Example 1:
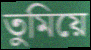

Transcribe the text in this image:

তুমিয়ে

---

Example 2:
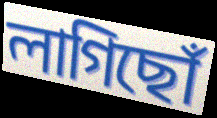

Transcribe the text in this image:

লাগিছোঁ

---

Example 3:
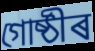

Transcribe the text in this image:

গোষ্ঠীৰ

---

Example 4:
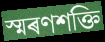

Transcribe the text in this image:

স্মৰণশক্তি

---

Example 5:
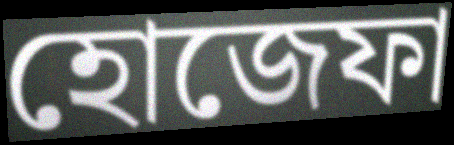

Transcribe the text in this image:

হোজেফা